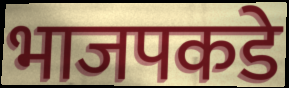
भाजपकडे